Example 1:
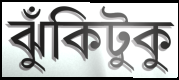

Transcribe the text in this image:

ঝুঁকিটুকু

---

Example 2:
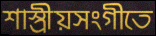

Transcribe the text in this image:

শাস্ত্রীয়সংগীতে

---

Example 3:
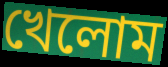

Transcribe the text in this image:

খেলোম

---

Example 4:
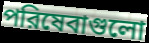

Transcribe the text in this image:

পরিষেবাগুলো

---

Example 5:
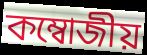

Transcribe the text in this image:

কম্বোজীয়